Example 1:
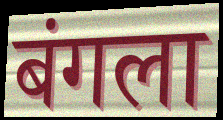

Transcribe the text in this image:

बंगला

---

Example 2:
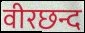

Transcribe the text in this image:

वीरछन्द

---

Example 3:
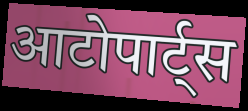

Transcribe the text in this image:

आटोपार्ट्स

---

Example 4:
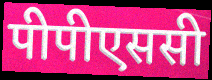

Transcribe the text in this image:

पीपीएससी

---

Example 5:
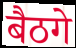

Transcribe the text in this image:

बैठगे